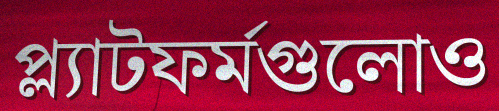
প্ল্যাটফর্মগুলোও